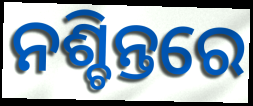
ନଶ୍ଚିନ୍ତରେ